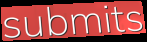
submits